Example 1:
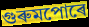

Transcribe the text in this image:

গুৰুমপোৰে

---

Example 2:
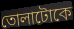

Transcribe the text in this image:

তোলাটোকে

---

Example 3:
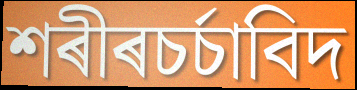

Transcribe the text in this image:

শৰীৰচৰ্চাবিদ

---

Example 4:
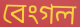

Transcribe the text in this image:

বেংগল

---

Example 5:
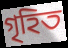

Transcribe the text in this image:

গৃহিত